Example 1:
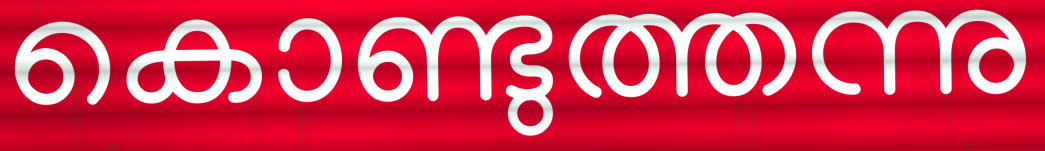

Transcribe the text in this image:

കൊണ്ടുത്തന്നു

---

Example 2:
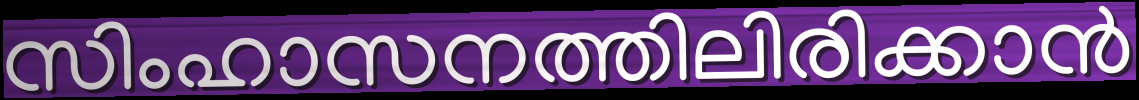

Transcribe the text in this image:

സിംഹാസനത്തിലിരിക്കാൻ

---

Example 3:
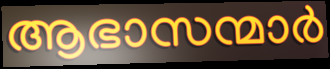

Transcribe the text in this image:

ആഭാസന്മാർ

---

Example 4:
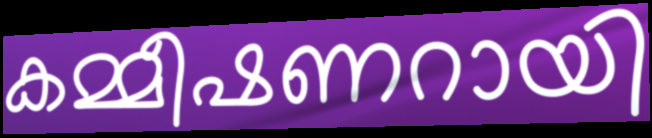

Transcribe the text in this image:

കമ്മീഷണറായി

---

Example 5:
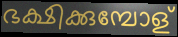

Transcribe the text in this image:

ഭക്ഷിക്കുമ്പോള്